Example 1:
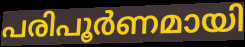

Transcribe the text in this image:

പരിപൂർണമായി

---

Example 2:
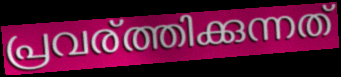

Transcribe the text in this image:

പ്രവര്ത്തിക്കുന്നത്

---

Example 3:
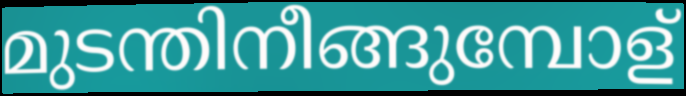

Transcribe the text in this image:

മുടന്തിനീങ്ങുമ്പോള്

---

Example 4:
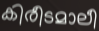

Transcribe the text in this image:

കിരീടമാലീ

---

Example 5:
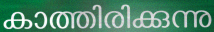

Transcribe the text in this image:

കാത്തിരിക്കുന്നു